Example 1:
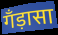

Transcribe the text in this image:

गँड़ासा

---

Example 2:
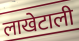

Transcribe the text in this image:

लाखेटाली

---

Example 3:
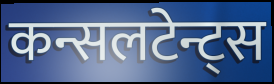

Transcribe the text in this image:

कन्सलटेन्ट्स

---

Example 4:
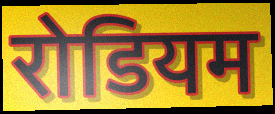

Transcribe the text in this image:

रोडियम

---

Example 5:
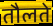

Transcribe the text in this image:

तौलते